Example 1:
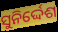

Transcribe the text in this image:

ସୁନିର୍ଦ୍ଦେଶ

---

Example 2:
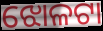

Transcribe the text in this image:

ଝୋଳଟା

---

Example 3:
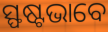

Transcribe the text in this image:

ସ୍ଫଷ୍ଟଭାବେ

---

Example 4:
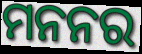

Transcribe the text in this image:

ମନନର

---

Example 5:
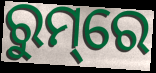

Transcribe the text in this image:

ରୁମ୍‌ରେ